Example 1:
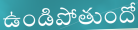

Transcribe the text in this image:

ఉండిపోతుందో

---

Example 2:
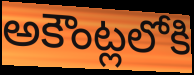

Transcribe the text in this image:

అకౌంట్లలోకి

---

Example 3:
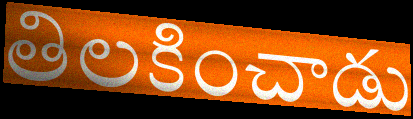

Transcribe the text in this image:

తిలకించాడు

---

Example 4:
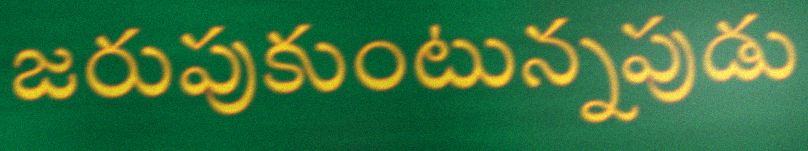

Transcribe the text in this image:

జరుపుకుంటున్నపుడు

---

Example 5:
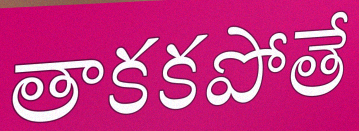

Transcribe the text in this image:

తాకకపోతే